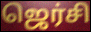
ஜெர்சி